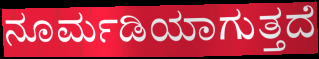
ನೂರ್ಮಡಿಯಾಗುತ್ತದೆ